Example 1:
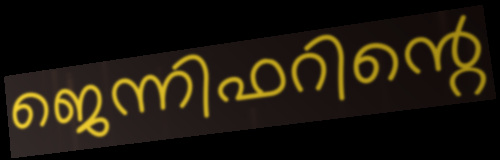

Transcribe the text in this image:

ജെന്നിഫറിന്റെ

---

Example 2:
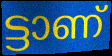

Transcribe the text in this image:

ട്ടാണ്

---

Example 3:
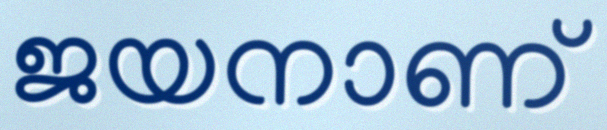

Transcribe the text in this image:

ജയനാണ്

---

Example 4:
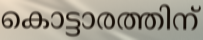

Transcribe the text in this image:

കൊട്ടാരത്തിന്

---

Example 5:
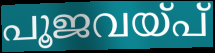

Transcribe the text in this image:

പൂജവയ്പ്